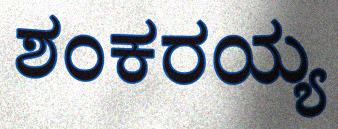
ಶಂಕರಯ್ಯ